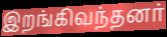
இறங்கிவந்தனர்